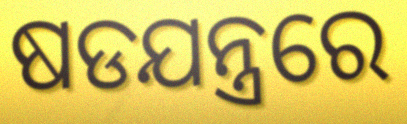
ଷଡଯନ୍ତ୍ରରେ